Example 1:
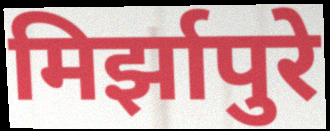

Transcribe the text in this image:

मिर्झापुरे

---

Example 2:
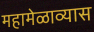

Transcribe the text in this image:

महामेळाव्यास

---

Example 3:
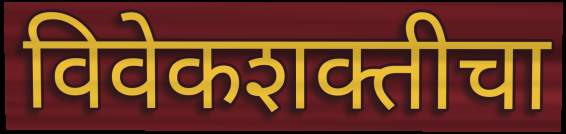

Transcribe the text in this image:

विवेकशक्तीचा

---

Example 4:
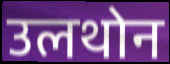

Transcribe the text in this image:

उलथोन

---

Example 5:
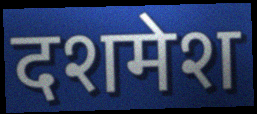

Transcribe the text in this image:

दशमेश